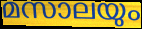
മസാലയും